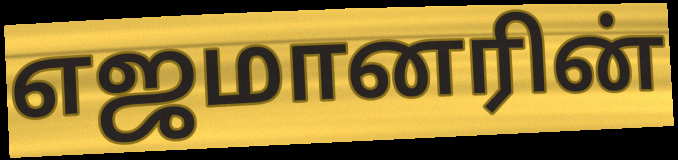
எஜமானரின்